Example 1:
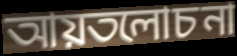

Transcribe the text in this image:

আয়তলোচনা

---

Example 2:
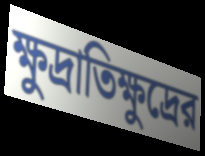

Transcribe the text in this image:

ক্ষুদ্রাতিক্ষুদ্রের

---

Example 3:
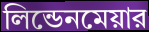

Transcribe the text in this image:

লিন্ডেনমেয়ার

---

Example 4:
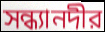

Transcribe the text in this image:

সন্ধ্যানদীর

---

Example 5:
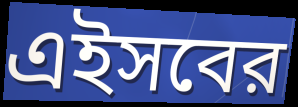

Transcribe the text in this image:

এইসবের